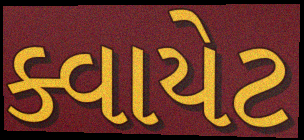
ક્વાયેટ